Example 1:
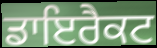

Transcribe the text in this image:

ਡਾਇਰੈਕਟ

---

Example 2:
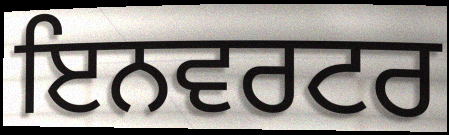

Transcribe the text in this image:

ਇਨਵਰਟਰ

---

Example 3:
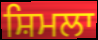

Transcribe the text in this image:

ਸ਼ਿਮਲਾ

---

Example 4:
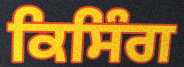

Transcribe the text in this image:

ਕਿਸਿੰਗ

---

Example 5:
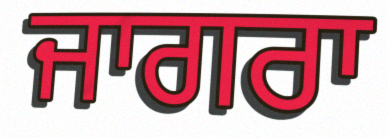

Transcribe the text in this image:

ਜਾਗਰਾ